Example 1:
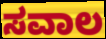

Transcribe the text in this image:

ಸವಾಲ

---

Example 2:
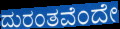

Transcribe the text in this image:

ದುರಂತವೆಂದೇ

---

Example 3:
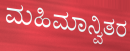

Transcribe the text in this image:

ಮಹಿಮಾನ್ವಿತರ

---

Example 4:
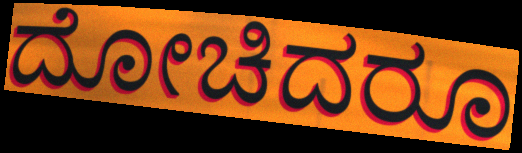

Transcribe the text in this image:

ದೋಚಿದರೂ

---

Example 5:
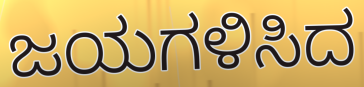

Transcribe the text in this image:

ಜಯಗಳಿಸಿದ